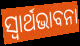
ସ୍ଵାର୍ଥଭାବନା